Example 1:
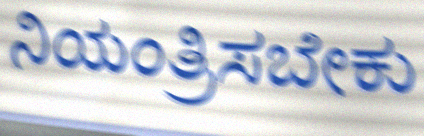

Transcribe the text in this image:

ನಿಯಂತ್ರಿಸಬೇಕು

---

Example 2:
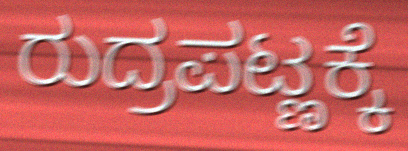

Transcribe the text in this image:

ರುದ್ರಪಟ್ಣಕ್ಕೆ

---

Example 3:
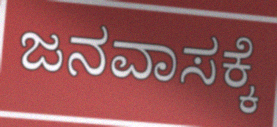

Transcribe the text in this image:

ಜನವಾಸಕ್ಕೆ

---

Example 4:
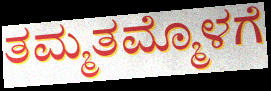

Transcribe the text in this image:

ತಮ್ಮತಮ್ಮೊಳಗೆ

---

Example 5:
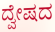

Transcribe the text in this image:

ದ್ವೇಷದ